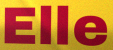
Elle